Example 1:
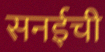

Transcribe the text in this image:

सनईची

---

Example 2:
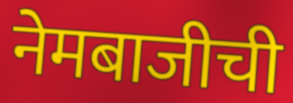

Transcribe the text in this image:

नेमबाजीची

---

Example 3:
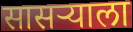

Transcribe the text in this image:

सासऱ्याला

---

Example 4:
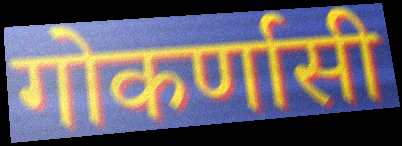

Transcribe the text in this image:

गोकर्णासी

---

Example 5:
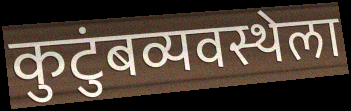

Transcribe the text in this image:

कुटुंबव्यवस्थेला